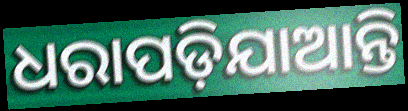
ଧରାପଡ଼ିଯାଆନ୍ତି